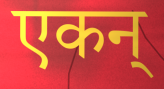
एकन्